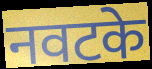
नवटके